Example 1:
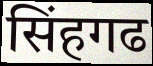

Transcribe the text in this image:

सिंहगढ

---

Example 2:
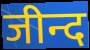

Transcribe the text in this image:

जीन्द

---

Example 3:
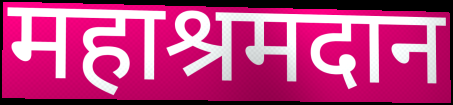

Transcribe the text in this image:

महाश्रमदान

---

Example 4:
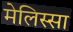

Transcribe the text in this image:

मेलिस्सा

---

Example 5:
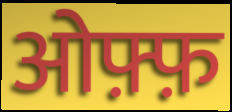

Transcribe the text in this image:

ओफ़्फ़